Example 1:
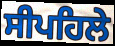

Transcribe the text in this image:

ਸੀਪਹਿਲੇ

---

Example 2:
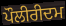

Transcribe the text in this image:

ਪੌਲੀਰੀਦਮ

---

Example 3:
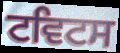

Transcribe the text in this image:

ਟਵਿਟਸ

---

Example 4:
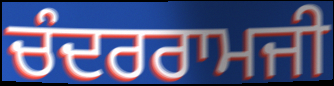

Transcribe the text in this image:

ਚੰਦਰਰਾਮਜੀ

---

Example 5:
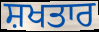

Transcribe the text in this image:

ਸ਼ਖਤਾਰ